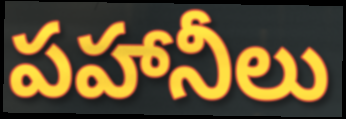
పహానీలు